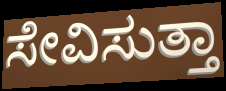
ಸೇವಿಸುತ್ತಾ